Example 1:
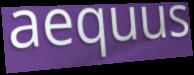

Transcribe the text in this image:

aequus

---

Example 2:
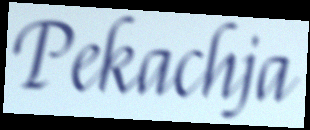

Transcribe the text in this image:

Pekachja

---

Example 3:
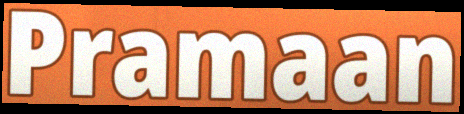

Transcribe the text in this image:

Pramaan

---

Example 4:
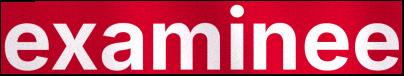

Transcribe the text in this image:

examinee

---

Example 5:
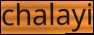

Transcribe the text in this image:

chalayi